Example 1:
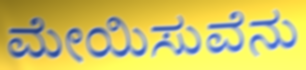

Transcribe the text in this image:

ಮೇಯಿಸುವೆನು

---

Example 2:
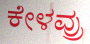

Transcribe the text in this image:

ಕೇಳವ್ರು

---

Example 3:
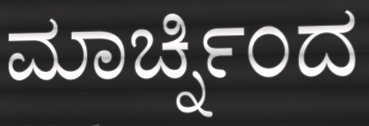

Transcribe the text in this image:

ಮಾರ್ಚ್ನಿಂದ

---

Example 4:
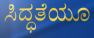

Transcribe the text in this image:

ಸಿದ್ಧತೆಯೂ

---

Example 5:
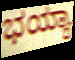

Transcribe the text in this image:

ಭಯ್ಯಾ